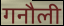
गनौली